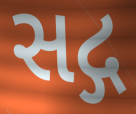
સદ્ગ